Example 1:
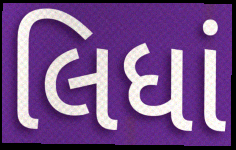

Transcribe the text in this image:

લિધાં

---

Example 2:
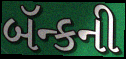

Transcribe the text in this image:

બૅન્કની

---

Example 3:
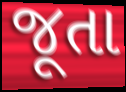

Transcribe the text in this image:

જૂતા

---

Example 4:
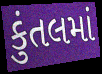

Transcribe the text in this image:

કુંતલમાં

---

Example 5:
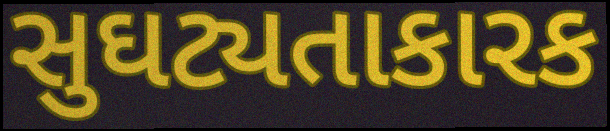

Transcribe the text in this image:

સુઘટ્યતાકારક